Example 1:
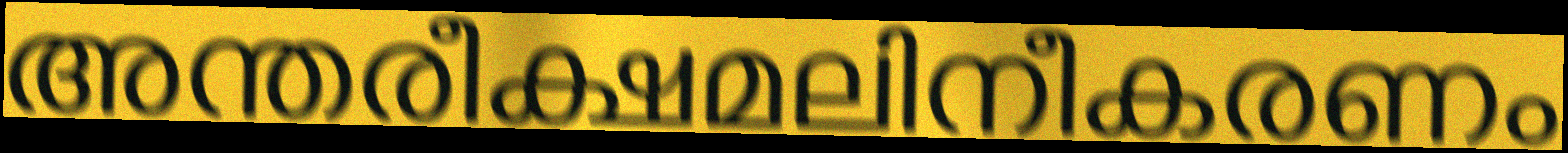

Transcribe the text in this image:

അന്തരീക്ഷമലിനീകരണം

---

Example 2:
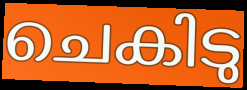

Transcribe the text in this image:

ചെകിടു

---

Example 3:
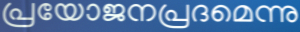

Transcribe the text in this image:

പ്രയോജനപ്രദമെന്നു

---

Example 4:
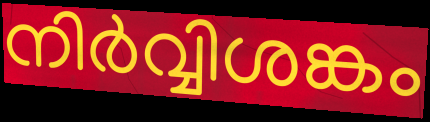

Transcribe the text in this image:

നിർവ്വിശങ്കം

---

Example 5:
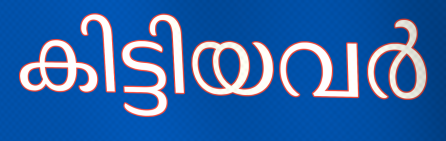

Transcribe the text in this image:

കിട്ടിയവർ